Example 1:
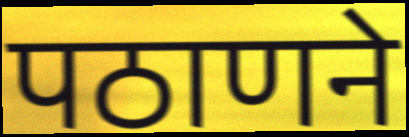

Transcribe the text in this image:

पठाणने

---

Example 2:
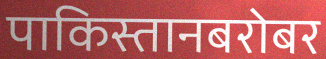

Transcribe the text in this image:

पाकिस्तानबरोबर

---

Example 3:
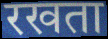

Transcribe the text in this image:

रखता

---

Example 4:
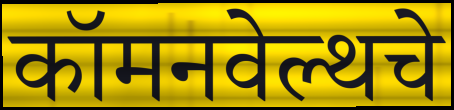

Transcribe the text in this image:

कॉमनवेल्थचे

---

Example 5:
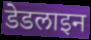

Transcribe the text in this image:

डेडलाइन